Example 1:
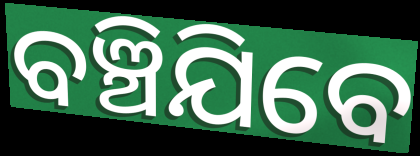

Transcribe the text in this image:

ବଞ୍ଚିଯିବେ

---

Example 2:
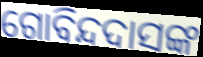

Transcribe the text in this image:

ଗୋବିନ୍ଦଦାସଙ୍କ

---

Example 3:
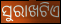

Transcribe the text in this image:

ସୁରାଖଟିଏ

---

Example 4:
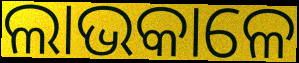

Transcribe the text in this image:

ଲାଭକାଳେ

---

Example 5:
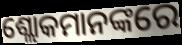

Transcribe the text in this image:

ଶ୍ଲୋକମାନଙ୍କରେ